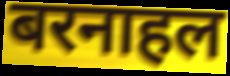
बरनाहल